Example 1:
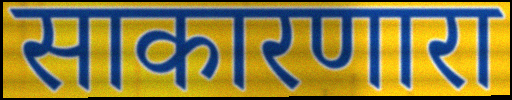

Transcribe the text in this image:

साकारणारा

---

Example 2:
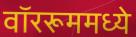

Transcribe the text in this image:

वॉररूममध्ये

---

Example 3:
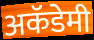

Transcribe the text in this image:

अकॅडेमी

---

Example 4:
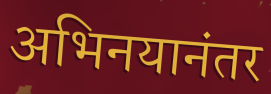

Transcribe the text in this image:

अभिनयानंतर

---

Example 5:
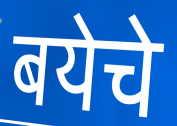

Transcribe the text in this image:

बयेचे